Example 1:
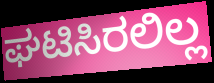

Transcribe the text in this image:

ಘಟಿಸಿರಲಿಲ್ಲ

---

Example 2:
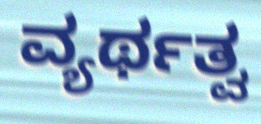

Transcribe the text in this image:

ವ್ಯರ್ಥತ್ವ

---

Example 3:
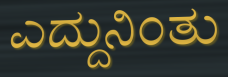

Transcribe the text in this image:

ಎದ್ದುನಿಂತು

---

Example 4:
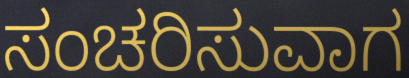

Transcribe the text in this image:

ಸಂಚರಿಸುವಾಗ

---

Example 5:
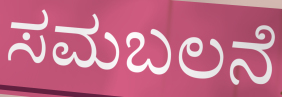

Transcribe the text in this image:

ಸಮಬಲನೆ